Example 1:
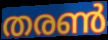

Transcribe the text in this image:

തരൺ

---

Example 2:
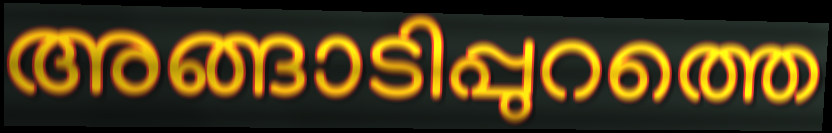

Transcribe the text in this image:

അങ്ങാടിപ്പുറത്തെ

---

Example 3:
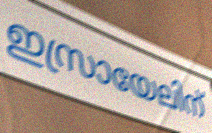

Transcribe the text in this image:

ഇസ്രായേലിന്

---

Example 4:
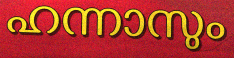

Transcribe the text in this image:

ഹന്നാസും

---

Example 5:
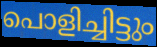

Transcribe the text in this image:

പൊളിച്ചിട്ടും